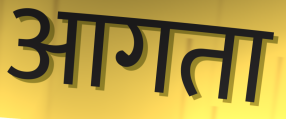
आगता